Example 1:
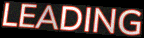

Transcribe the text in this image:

LEADING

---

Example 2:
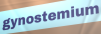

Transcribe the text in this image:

gynostemium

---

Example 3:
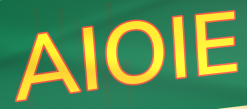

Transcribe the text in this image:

AIOIE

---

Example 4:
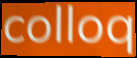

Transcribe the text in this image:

colloq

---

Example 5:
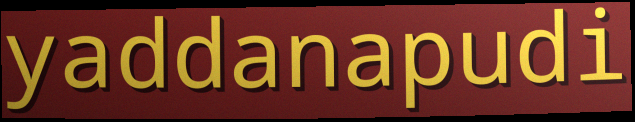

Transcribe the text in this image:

yaddanapudi